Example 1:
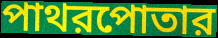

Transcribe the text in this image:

পাথরপোতার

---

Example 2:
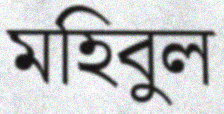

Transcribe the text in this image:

মহিবুল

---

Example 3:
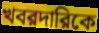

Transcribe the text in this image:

খবরদারিকে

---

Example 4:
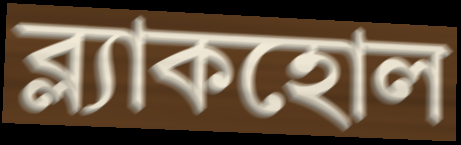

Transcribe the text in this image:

ব্ল্যাকহোল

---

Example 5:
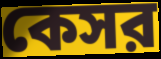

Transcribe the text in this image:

কেসর